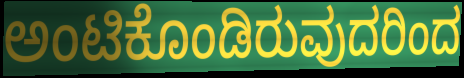
ಅಂಟಿಕೊಂಡಿರುವುದರಿಂದ